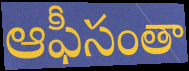
ఆఫీసంతా